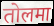
तोलमा